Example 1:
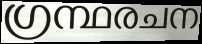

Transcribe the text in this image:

ഗ്രന്ഥരചന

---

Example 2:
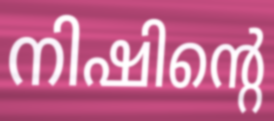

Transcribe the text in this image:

നിഷിന്റെ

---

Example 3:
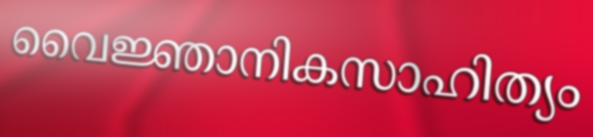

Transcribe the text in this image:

വൈജ്ഞാനികസാഹിത്യം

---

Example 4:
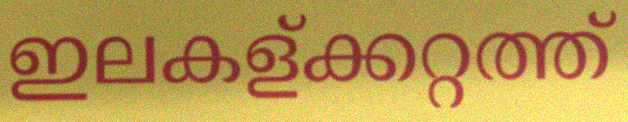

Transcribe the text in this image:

ഇലകള്ക്കറ്റത്ത്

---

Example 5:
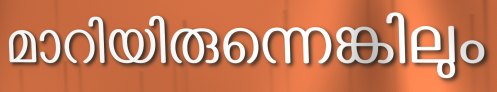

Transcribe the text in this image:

മാറിയിരുന്നെങ്കിലും